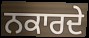
ਨਕਾਰਦੇ